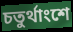
চতুর্থাংশে